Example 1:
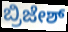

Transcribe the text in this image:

ಬ್ರಿಜೇಶ್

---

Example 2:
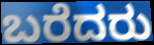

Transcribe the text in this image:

ಬರೆದರು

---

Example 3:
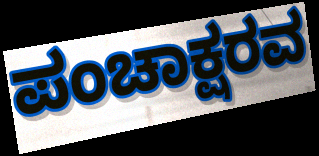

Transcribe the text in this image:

ಪಂಚಾಕ್ಷರವ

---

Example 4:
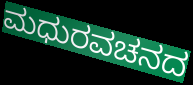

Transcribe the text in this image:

ಮಧುರವಚನದ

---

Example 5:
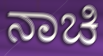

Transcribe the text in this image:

ನಾಚಿ